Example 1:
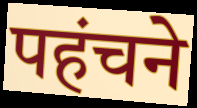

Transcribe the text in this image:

पहंचने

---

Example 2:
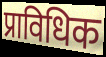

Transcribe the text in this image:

प्राविधिक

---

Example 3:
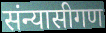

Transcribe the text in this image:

संन्यासीगण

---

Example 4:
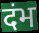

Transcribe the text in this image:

दंभ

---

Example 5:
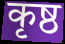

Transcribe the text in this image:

कृष्ठ